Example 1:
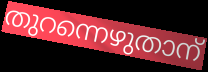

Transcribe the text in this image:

തുറന്നെഴുതാന്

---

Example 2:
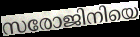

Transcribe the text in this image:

സരോജിനിയെ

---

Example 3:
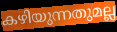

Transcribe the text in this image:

കഴിയുന്നതുമല്ല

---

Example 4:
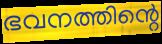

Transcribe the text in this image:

ഭവനത്തിന്റെ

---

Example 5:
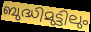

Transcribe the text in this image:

ബുദ്ധിമുട്ടിലും